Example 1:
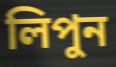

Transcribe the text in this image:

লিপুন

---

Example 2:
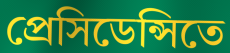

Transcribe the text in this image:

প্রেসিডেন্সিতে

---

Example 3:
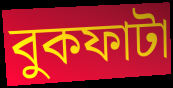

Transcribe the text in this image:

বুকফাটা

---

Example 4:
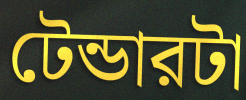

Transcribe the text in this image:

টেন্ডারটা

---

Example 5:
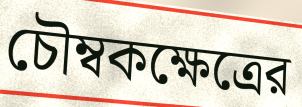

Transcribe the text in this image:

চৌম্বকক্ষেত্রের